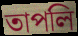
তাপলি